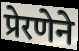
प्रेरणेने